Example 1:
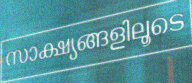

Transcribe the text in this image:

സാക്ഷ്യങ്ങളിലൂടെ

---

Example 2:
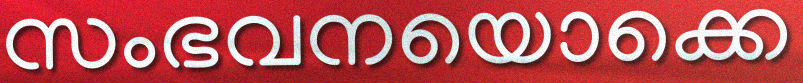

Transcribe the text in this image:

സംഭവനയൊക്കെ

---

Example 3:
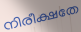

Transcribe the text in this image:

നിരീക്ഷതേ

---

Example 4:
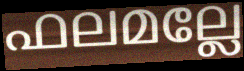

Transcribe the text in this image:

ഫലമല്ലേ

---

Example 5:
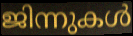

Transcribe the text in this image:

ജിന്നുകൾ